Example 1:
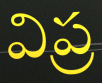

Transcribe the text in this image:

విప్ర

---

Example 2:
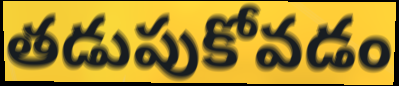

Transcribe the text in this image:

తడుపుకోవడం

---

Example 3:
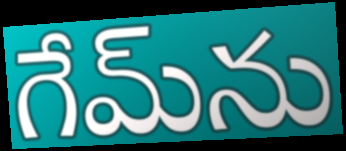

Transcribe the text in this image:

గేమ్‌ను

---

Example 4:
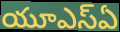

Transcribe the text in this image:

యూఎస్ఏ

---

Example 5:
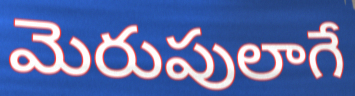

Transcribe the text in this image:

మెరుపులాగే